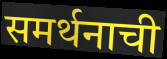
समर्थनाची